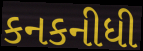
કનકનીધી